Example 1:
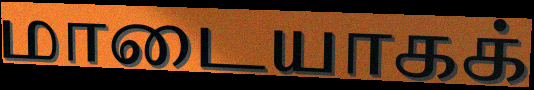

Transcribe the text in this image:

மாடையாகக்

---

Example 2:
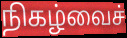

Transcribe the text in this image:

நிகழ்வைச்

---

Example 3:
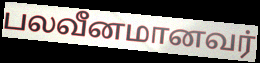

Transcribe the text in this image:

பலவீனமானவர்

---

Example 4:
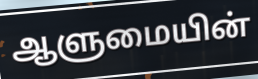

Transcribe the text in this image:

ஆளுமையின்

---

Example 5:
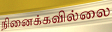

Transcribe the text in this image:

நினைக்கவில்லை